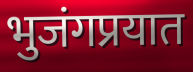
भुजंगप्रयात